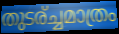
തുടര്ച്ചമാത്രം